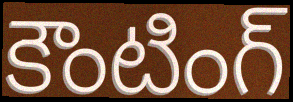
కౌంటింగ్